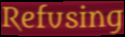
Refusing